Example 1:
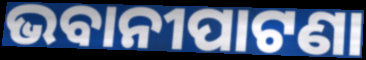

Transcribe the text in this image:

ଭବାନୀପାଟଣା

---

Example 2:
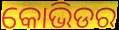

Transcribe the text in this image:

କୋଭିଡର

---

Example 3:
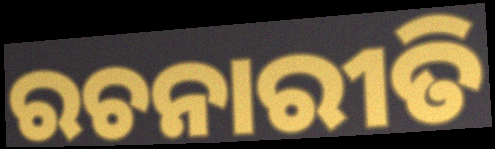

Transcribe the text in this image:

ରଚନାରୀତି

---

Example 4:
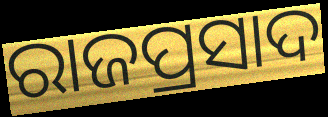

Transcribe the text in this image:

ରାଜପ୍ରସାଦ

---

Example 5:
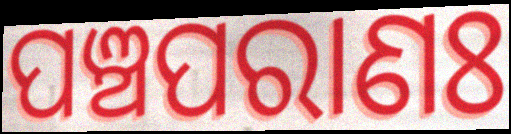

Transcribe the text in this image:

ପଞ୍ଚପରାଣଃ